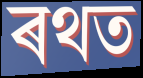
ৰথত